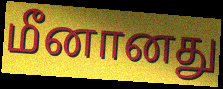
மீனானது